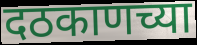
दठकाणच्या